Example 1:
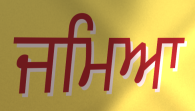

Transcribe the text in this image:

ਜਮਿਆ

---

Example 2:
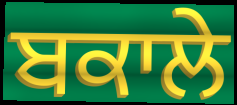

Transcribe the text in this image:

ਬਕਾਲੇ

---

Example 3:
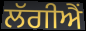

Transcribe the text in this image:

ਲੱਗੀਐਂ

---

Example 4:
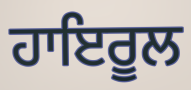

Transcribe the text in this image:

ਹਾਇਰੂਲ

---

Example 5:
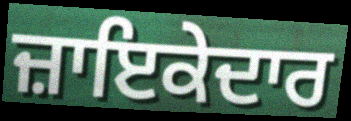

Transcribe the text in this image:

ਜ਼ਾਇਕੇਦਾਰ